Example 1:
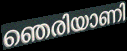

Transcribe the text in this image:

ഞെരിയാണി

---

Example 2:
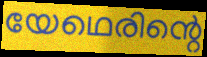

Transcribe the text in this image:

യേഥെരിന്റെ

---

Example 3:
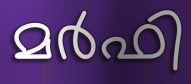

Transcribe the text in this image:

മർഫി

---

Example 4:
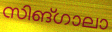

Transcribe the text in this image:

സിങ്ഗാലാ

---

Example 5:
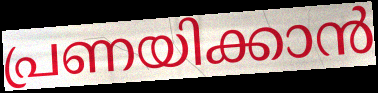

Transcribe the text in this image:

പ്രണയിക്കാൻ